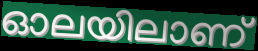
ഓലയിലാണ്